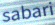
sabari